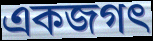
একজগৎ